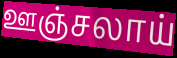
ஊஞ்சலாய்